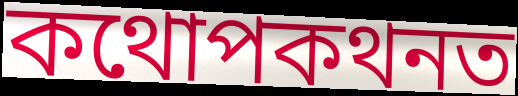
কথোপকথনত